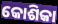
କୋଶିକା